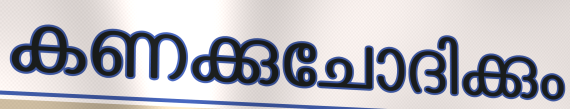
കണക്കുചോദിക്കും